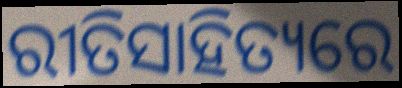
ରୀତିସାହିତ୍ୟରେ